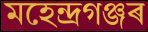
মহেন্দ্ৰগঞ্জৰ